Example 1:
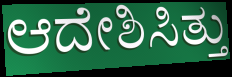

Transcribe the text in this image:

ಆದೇಶಿಸಿತ್ತು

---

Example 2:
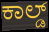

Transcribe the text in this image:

ಕಾಲ್ಡ್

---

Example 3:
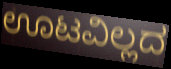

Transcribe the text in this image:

ಊಟವಿಲ್ಲದ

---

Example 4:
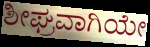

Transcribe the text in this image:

ಶೀಘ್ರವಾಗಿಯೇ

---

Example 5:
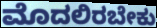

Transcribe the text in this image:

ಮೊದಲಿರಬೇಕು